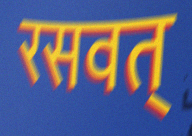
रसवत्